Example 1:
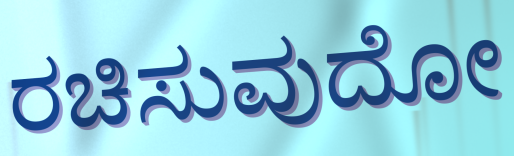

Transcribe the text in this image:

ರಚಿಸುವುದೋ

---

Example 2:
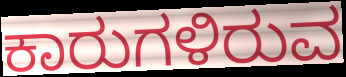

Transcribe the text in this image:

ಕಾರುಗಳಿರುವ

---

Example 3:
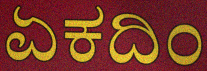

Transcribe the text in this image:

ಏಕದಿಂ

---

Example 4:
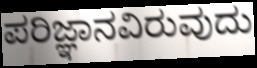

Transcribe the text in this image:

ಪರಿಜ್ಞಾನವಿರುವುದು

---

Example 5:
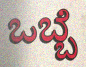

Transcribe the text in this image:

ಒಬ್ಬೆ